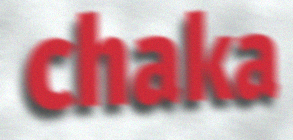
chaka